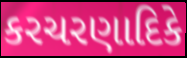
કરચરણાદિકે